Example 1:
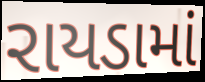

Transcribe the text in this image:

રાયડામાં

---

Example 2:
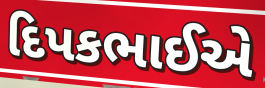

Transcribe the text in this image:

દિપકભાઈએ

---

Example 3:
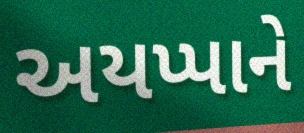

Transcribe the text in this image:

અયપ્પાને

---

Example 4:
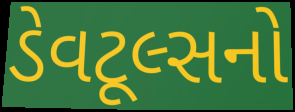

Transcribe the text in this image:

ડેવટૂલ્સનો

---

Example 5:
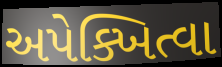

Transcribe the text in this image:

અપેક્ખિત્વા